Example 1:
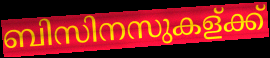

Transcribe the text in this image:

ബിസിനസുകള്ക്ക്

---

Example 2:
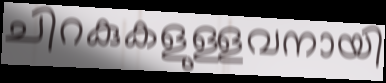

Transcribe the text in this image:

ചിറകുകളുള്ളവനായി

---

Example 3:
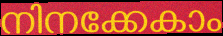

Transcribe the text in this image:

നിനക്കേകാം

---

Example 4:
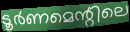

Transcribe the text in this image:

ടൂർണമെന്റിലെ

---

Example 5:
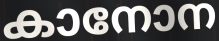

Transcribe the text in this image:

കാനോന